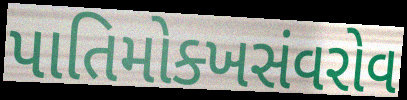
પાતિમોક્ખસંવરોવ